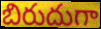
బిరుదుగా